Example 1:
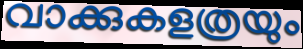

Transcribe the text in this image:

വാക്കുകളത്രയും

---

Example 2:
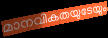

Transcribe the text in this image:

മാനവികതയുടേയും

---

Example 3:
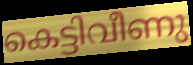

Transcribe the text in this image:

കെട്ടിവീണു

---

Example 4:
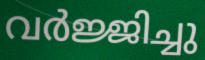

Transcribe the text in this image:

വർജ്ജിച്ചു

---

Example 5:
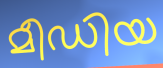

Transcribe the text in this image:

മീഡിയ